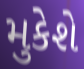
મુકેશે